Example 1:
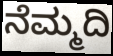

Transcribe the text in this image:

ನೆಮ್ಮದಿ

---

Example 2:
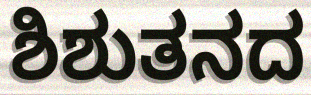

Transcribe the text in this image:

ಶಿಶುತನದ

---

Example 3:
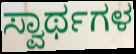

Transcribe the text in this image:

ಸ್ವಾರ್ಥಗಳ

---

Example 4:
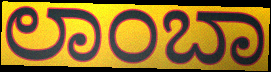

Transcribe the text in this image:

ಲಾಂಬಾ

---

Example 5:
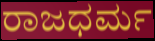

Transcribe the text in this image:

ರಾಜಧರ್ಮ